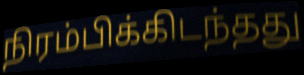
நிரம்பிக்கிடந்தது